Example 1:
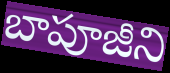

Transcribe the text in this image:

బాపూజీని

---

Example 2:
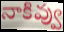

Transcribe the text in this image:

నాకివ్వు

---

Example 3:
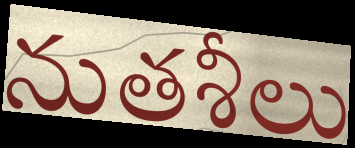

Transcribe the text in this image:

నుతశీలు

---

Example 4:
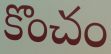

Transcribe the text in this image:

కొంచం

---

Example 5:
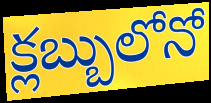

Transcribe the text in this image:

క్లబ్బులోనో